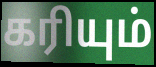
கரியும்